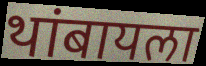
थांबायला